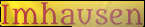
Imhausen